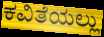
ಕವಿತೆಯಲ್ಲು